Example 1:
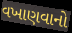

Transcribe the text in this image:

વખાણવાનો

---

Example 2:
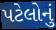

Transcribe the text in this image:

પટેલોનું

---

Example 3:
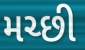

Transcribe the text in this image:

મચ્છી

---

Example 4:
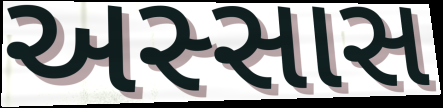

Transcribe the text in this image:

અસ્સાસ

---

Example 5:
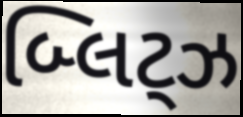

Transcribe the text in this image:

બ્લિટ્ઝ